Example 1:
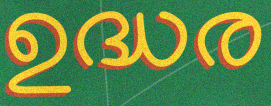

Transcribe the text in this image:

ഉദ്ധര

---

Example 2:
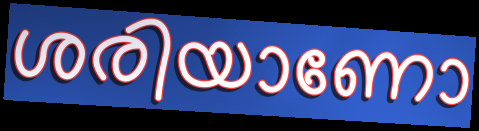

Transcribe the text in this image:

ശരിയാണോ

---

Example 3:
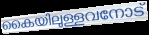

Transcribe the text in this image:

കൈയിലുള്ളവനോട്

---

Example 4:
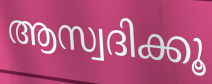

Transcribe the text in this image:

ആസ്വദിക്കൂ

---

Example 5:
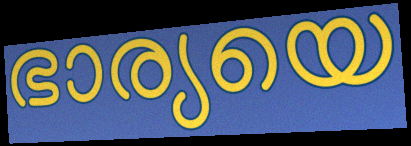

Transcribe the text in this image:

ഭാര്യയെ